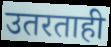
उतरताही